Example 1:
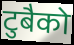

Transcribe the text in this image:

टुबैको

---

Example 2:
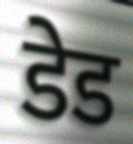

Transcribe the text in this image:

डेड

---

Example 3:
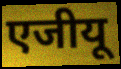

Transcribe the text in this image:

एजीयू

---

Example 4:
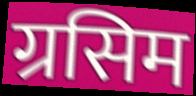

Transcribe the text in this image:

ग्रसिम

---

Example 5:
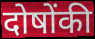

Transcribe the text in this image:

दोषोंकी